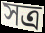
সত্ৰ